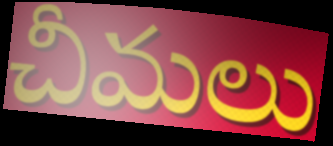
చీమలు